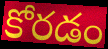
కోరడం